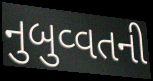
નુબુવ્વતની